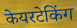
केयरटेकिंग